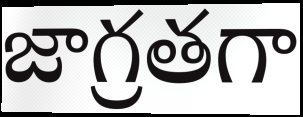
జాగ్రతగా